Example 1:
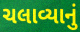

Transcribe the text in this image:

ચલાવ્યાનું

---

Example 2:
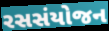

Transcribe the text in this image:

રસસંયોજન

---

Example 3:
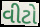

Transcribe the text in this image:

વીટો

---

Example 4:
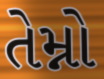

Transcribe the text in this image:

તેમ્નો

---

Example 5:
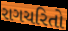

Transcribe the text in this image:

રાગચરિતો